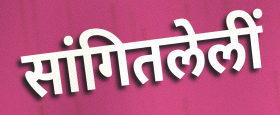
सांगितलेलीं